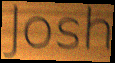
Josh